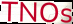
TNOs